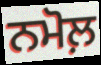
ਨਮੋਲ਼